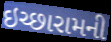
ઇચ્છારામની